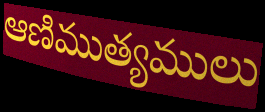
ఆణిముత్యములు